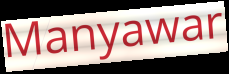
Manyawar